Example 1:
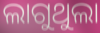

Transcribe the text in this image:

ଲାଗୁଥୁଲା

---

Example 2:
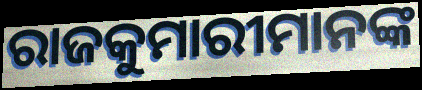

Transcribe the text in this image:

ରାଜକୁମାରୀମାନଙ୍କ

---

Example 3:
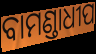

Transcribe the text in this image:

ବାମଣ୍ଡାଧୀପ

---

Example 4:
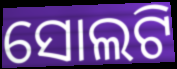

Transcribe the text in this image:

ସୋଲଟି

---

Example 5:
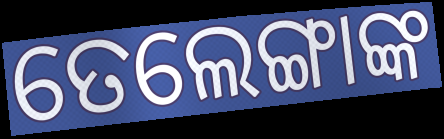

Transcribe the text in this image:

ତେଲେଙ୍ଗାଙ୍କ